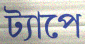
ট্যাপে